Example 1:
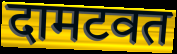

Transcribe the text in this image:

दामटवत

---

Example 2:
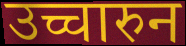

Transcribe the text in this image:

उच्चारुन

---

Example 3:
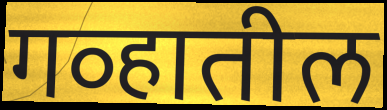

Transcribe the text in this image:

गव्हातील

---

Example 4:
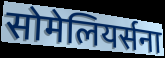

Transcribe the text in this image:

सोमेलियर्सना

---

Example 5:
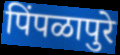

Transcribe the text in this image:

पिंपळापुरे